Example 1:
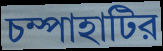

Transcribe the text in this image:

চম্পাহাটির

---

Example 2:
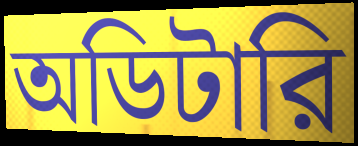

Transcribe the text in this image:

অডিটারি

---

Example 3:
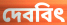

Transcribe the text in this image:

দেববিৎ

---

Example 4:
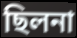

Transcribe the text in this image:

ছিলনা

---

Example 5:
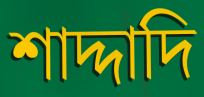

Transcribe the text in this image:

শাদ্দাদি